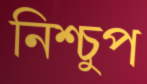
নিশ্চুপ